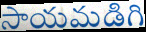
సాయమడిగి